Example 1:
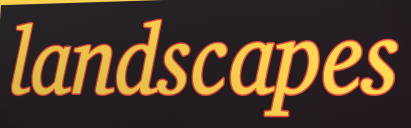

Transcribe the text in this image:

landscapes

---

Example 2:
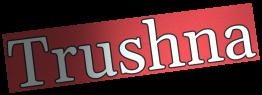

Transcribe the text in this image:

Trushna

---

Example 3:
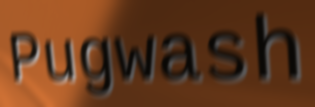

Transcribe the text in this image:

Pugwash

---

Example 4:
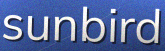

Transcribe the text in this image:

sunbird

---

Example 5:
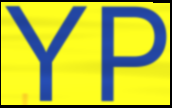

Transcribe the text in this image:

YP